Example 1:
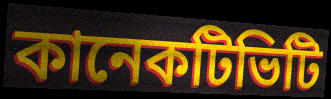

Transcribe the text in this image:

কানেকটিভিটি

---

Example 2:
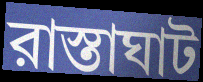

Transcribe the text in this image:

রাস্তাঘাট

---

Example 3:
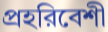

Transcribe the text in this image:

প্রহরিবেশী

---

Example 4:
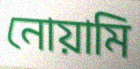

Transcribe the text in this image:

নোয়ামি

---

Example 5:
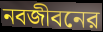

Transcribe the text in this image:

নবজীবনের